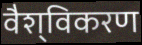
वैश्विकरण